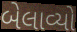
બેલાવ્યો